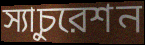
স্যাচুরেশন